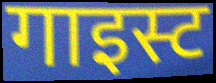
गाइस्ट